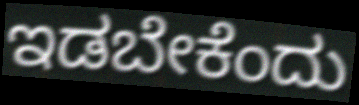
ಇಡಬೇಕೆಂದು